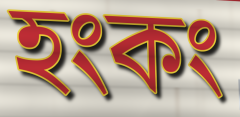
হংকং